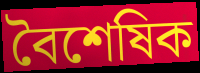
বৈশেষিক